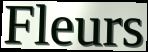
Fleurs